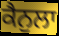
ਕੈਨੁਲਾ